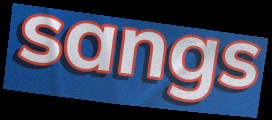
sangs